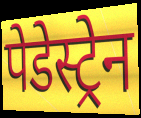
पेडेस्ट्रेन